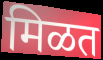
मिळत